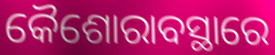
କୈଶୋରାବସ୍ଥାରେ